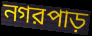
নগরপাড়